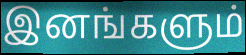
இனங்களும்